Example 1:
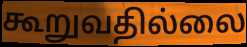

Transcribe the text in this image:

கூறுவதில்லை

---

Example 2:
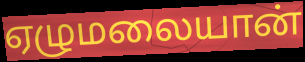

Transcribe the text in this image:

ஏழுமலையான்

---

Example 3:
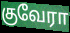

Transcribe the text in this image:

குவேரா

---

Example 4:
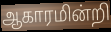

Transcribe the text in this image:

ஆகாரமின்றி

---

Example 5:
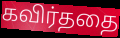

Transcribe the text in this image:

கவிர்ததை